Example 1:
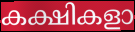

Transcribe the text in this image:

കക്ഷികളാ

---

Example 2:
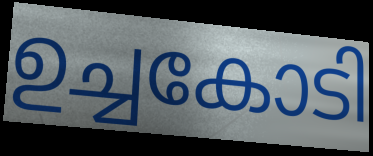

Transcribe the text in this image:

ഉച്ചകോടി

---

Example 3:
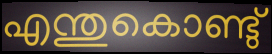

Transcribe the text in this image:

എന്തുകൊണ്ടു്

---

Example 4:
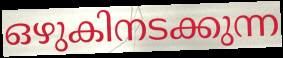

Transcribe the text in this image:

ഒഴുകിനടക്കുന്ന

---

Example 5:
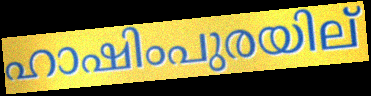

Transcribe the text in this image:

ഹാഷിംപുരയില്